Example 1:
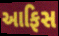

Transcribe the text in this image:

આફિસ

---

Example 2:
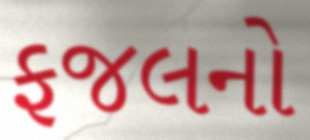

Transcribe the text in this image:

ફજલનો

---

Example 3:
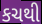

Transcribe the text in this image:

કચથી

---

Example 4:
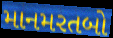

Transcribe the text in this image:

માનમરતબો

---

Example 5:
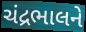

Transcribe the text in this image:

ચંદ્રભાલને